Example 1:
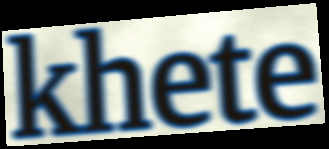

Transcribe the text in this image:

khete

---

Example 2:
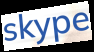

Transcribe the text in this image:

skype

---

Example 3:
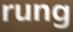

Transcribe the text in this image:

rung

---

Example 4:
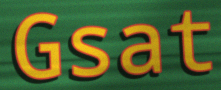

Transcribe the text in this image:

Gsat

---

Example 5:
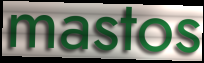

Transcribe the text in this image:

mastos